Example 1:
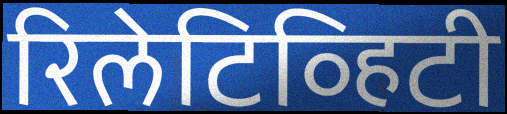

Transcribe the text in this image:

रिलेटिव्हिटी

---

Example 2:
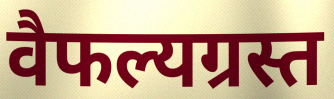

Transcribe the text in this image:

वैफल्यग्रस्त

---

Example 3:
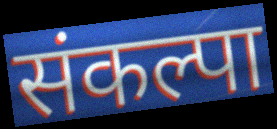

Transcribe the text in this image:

संकल्पा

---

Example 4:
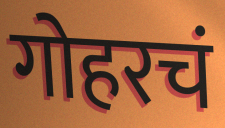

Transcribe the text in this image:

गोहरचं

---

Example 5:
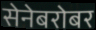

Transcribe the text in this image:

सेनेबरोबर